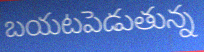
బయటపెడుతున్న